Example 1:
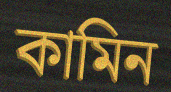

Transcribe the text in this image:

কামিন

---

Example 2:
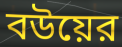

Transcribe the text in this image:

বউয়ের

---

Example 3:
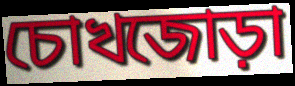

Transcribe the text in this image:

চোখজোড়া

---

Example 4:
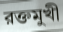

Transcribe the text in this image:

রক্তমুখী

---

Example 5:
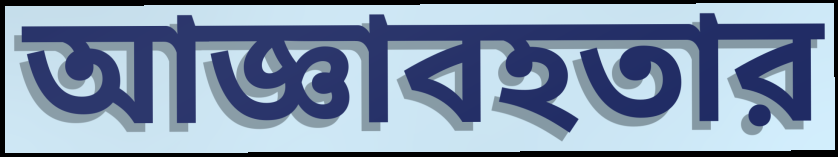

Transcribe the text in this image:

আজ্ঞাবহতার